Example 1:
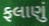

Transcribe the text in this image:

ફલાણું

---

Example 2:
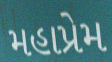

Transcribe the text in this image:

મહાપ્રેમ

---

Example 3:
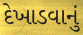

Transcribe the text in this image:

દેખાડવાનું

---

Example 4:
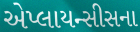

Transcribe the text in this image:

એપ્લાયન્સીસના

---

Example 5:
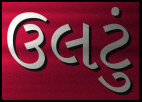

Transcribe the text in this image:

ઉલટું